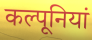
कल्पूनियां